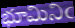
భూమినిఁ